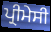
ਪ੍ਰੀਮੇਸੀ